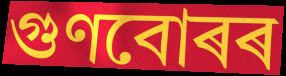
গুণবোৰৰ